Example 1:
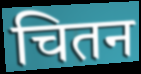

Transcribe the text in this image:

चितन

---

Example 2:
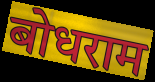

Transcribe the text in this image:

बोधराम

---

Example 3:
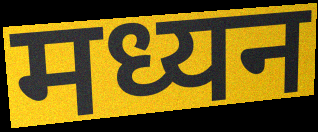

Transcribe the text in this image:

मध्यन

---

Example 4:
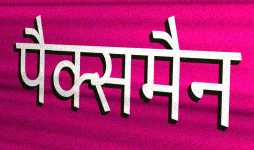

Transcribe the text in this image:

पैक्समैन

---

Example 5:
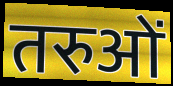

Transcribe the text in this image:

तरुओं